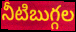
నీటిబుగ్గల